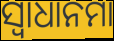
ସ୍ଵାଧାନମା